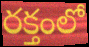
రక్తంలో